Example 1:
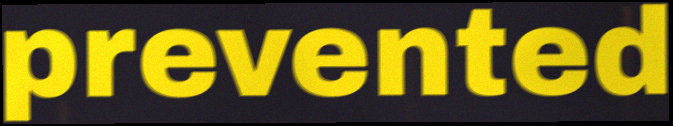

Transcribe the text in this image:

prevented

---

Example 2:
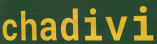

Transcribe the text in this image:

chadivi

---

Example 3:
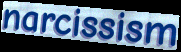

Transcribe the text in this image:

narcissism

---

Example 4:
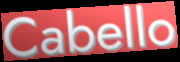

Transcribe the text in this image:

Cabello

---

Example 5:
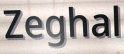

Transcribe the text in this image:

Zeghal